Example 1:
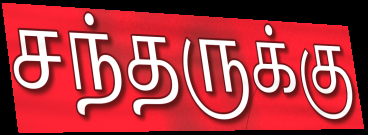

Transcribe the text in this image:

சந்தருக்கு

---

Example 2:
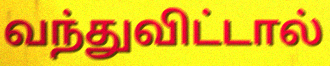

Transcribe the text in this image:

வந்துவிட்டால்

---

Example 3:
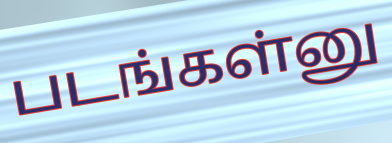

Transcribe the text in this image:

படங்கள்னு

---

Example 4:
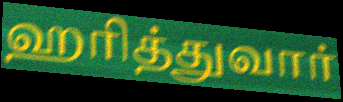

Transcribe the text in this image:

ஹரித்துவார்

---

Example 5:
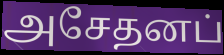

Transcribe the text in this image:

அசேதனப்